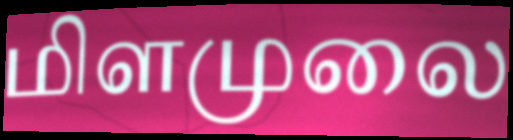
மிளமுலை